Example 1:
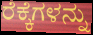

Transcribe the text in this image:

ರೆಕ್ಕೆಗಳನ್ನು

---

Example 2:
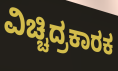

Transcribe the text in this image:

ವಿಚ್ಚಿದ್ರಕಾರಕ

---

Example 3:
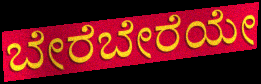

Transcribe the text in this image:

ಬೇರೆಬೇರೆಯೇ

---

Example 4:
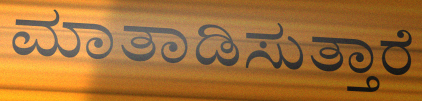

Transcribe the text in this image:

ಮಾತಾಡಿಸುತ್ತಾರೆ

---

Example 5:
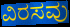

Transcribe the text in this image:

ವಿರಸವು